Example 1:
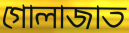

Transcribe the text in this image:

গোলাজাত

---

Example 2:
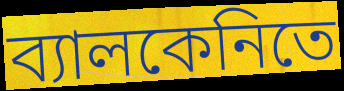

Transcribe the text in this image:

ব্যালকেনিতে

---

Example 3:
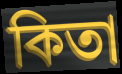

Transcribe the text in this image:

কিতা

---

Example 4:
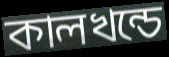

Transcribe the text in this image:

কালখন্ডে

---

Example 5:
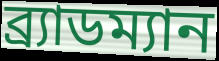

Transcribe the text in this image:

ব্র্যাডম্যান